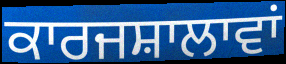
ਕਾਰਜਸ਼ਾਲਾਵਾਂ